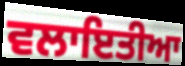
ਵਲਾਇਤੀਆ